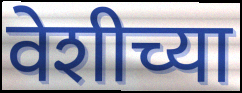
वेशीच्या